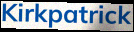
Kirkpatrick